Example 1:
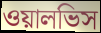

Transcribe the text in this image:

ওয়ালভিস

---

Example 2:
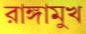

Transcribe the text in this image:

রাঙ্গামুখ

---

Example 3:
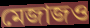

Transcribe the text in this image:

মেজাজও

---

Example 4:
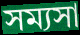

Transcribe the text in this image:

সম্যসা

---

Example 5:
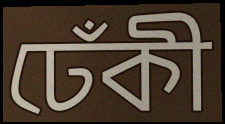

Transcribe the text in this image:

ঢেঁকী